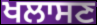
ਖਲਾਸਣ